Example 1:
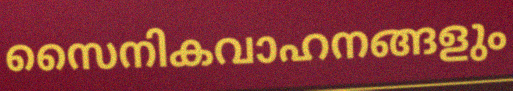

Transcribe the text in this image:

സൈനികവാഹനങ്ങളും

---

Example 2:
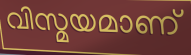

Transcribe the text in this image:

വിസ്മയമാണ്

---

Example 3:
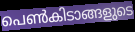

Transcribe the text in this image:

പെൺകിടാങ്ങളുടെ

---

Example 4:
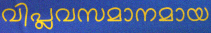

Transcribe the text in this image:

വിപ്ലവസമാനമായ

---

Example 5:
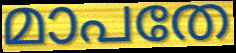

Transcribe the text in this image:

മാപതേ